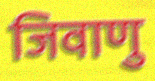
जिवाणु